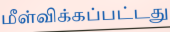
மீள்விக்கப்பட்டது